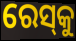
ରେସ୍‌କୁ